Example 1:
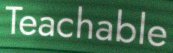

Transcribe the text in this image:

Teachable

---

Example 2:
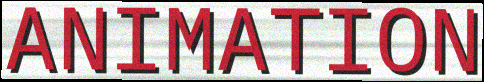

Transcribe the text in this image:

ANIMATION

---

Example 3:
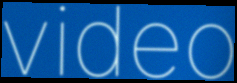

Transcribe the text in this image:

video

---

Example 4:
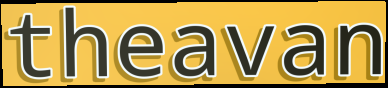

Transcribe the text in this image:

theavan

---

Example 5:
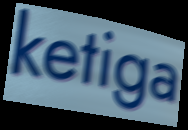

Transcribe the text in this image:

ketiga